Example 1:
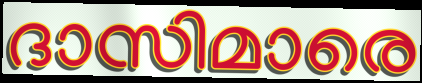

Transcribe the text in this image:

ദാസിമാരെ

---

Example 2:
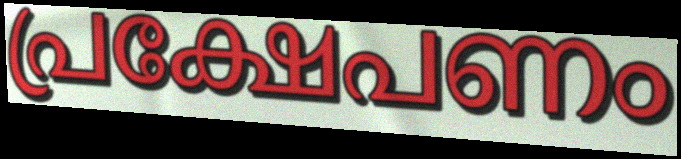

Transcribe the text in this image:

പ്രക്ഷേപണം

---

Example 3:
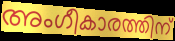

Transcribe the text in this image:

അംഗീകാരത്തിന്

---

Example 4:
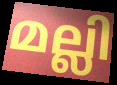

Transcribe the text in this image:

മല്ലി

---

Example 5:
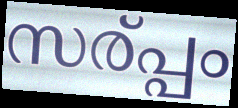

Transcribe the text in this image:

സര്പ്പം